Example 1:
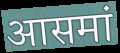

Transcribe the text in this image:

आसमां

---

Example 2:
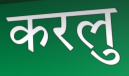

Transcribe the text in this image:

करलु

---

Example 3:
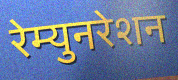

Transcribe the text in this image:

रेम्युनरेशन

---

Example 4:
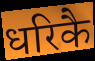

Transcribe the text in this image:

धरिकै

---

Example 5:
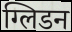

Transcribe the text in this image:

ग्लिडन